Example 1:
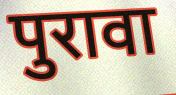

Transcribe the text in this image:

पुरावा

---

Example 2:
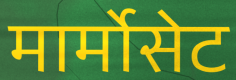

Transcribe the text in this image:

मार्मोसेट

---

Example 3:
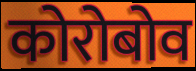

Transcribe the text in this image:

कोरोबोव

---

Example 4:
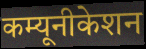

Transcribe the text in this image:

कम्यूनीकेशन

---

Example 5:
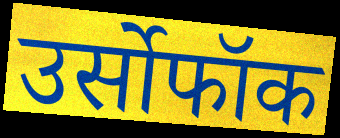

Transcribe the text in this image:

उर्सोफॉक